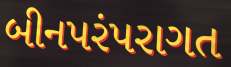
બીનપરંપરાગત